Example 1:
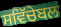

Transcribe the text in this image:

ਸਵਿੱਚੇਬਲ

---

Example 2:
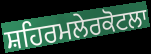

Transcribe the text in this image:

ਸ਼ਹਿਰਮਲੇਰਕੋਟਲਾ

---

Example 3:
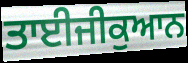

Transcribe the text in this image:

ਤਾਈਜੀਕੁਆਨ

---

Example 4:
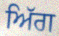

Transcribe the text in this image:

ਅਿੱਗ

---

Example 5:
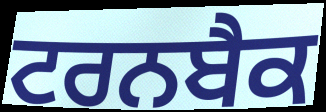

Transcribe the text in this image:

ਟਰਨਬੈਕ